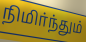
நிமிர்ந்தும்